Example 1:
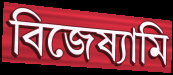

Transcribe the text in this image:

বিজেষ্যামি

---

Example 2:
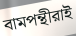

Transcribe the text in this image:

বামপন্থীরাই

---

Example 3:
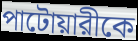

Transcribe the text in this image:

পাটোয়ারীকে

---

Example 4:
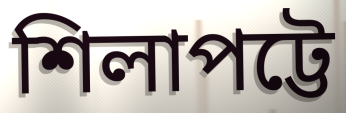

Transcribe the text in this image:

শিলাপট্টে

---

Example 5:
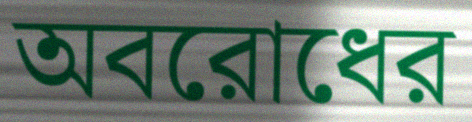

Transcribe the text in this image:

অবরোধের